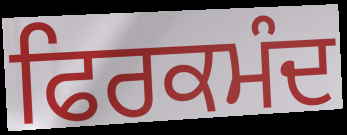
ਫਿਰਕਮੰਦ